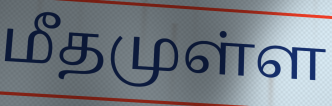
மீதமுள்ள